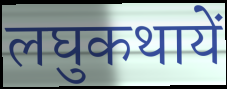
लघुकथायें